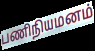
பணிநியமனம்